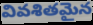
వివశితమైన